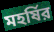
মহর্ষির